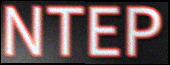
NTEP